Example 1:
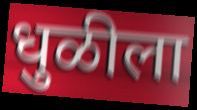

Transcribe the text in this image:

धुळीला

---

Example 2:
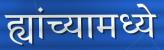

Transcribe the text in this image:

ह्यांच्यामध्ये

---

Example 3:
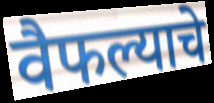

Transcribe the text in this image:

वैफल्याचे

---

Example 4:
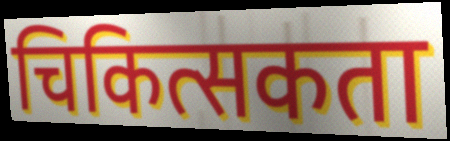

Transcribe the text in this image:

चिकित्सकता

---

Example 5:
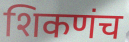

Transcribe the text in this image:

शिकणंच